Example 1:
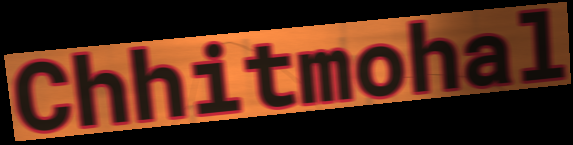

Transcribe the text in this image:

Chhitmohal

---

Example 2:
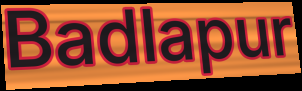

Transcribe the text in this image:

Badlapur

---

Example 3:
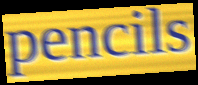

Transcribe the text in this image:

pencils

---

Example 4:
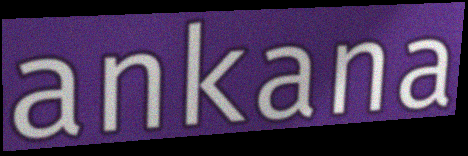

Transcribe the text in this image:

ankana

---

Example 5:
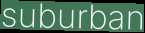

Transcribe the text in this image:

suburban